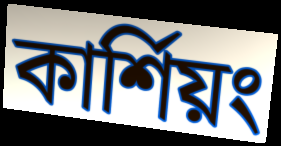
কার্শিয়ং